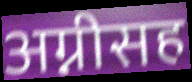
अग्नीसह